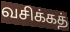
வசிக்கத்